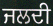
ਜਲਦੀ